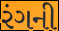
રંગની